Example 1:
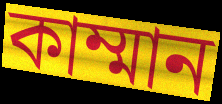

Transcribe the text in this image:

কাম্মান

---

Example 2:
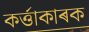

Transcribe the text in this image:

কৰ্ত্তাকাৰক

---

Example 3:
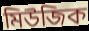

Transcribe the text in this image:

মিউজিক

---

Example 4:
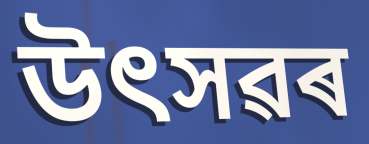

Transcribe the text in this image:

উৎসৱৰ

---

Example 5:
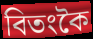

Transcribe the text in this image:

বিতংকৈ